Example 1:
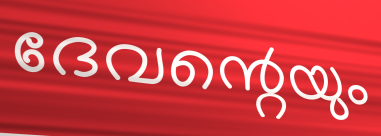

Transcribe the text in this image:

ദേവന്റെയും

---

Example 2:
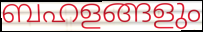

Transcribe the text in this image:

ബഹളങ്ങളും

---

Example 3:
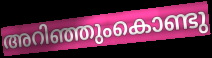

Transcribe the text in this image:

അറിഞ്ഞുംകൊണ്ടു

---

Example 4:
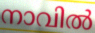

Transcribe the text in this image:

നാവിൽ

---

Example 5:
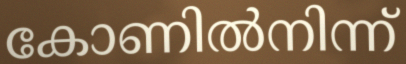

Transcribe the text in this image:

കോണിൽനിന്ന്